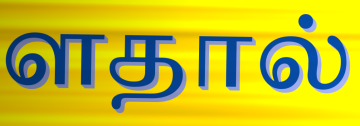
ளதால்